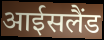
आईसलैंड